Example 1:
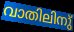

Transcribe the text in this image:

വാതിലിനു്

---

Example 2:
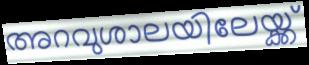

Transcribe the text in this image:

അറവുശാലയിലേയ്ക്ക്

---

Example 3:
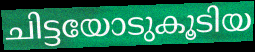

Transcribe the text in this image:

ചിട്ടയോടുകൂടിയ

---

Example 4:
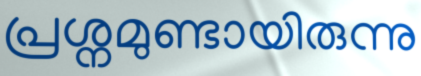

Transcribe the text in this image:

പ്രശ്നമുണ്ടായിരുന്നു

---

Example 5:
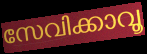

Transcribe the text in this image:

സേവിക്കാവൂ